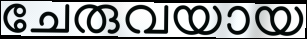
ചേരുവയായ